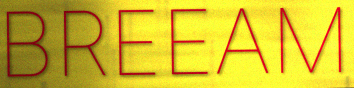
BREEAM